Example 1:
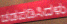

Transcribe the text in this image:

ಚಡಪಡಿಸಿದಳು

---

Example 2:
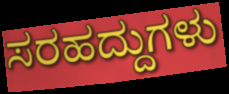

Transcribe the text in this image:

ಸರಹದ್ದುಗಳು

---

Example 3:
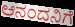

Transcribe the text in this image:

ಆನಂದನಿಗೆ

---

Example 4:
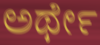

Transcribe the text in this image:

ಅರ್ಥೇ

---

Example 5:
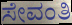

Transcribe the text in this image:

ಸೇವಂತಿ